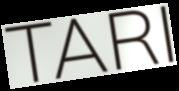
TARI